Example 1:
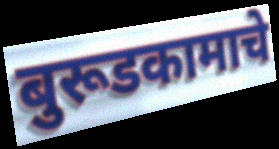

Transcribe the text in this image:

बुरूडकामाचे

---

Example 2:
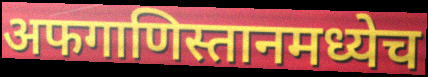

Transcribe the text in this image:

अफगाणिस्तानमध्येच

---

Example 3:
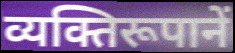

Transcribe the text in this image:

व्यक्तिरूपानें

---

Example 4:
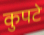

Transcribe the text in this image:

कुपटे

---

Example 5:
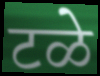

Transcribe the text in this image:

टळे